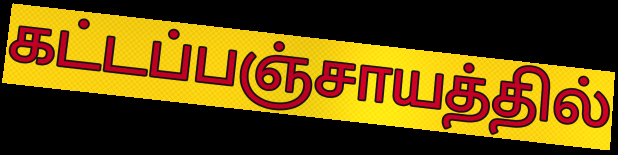
கட்டப்பஞ்சாயத்தில்